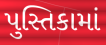
પુસ્તિકામાં